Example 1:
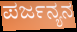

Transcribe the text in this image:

ಪರ್ಜನ್ಯನ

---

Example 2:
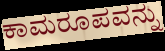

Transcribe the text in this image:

ಕಾಮರೂಪವನ್ನು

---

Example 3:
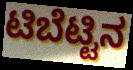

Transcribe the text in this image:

ಟಿಬೆಟ್ಟಿನ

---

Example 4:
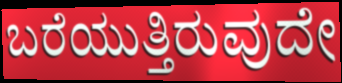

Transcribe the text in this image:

ಬರೆಯುತ್ತಿರುವುದೇ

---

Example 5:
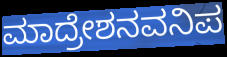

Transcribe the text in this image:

ಮಾದ್ರೇಶನವನಿಪ